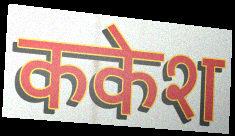
ककेश